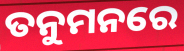
ତନୁମନରେ